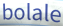
bolale